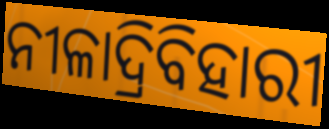
ନୀଳାଦ୍ରିବିହାରୀ